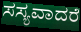
ಸಸ್ಯವಾದರೆ